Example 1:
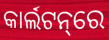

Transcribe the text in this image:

କାର୍ଲଟନ୍‌ରେ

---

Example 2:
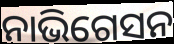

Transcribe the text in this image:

ନାଭିଗେସନ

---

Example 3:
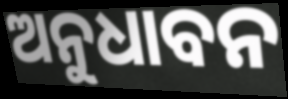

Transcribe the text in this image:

ଅନୁଧାବନ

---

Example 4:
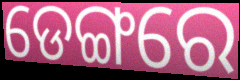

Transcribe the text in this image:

ଡେଙ୍ଗରେ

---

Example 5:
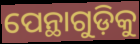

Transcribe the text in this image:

ପେନ୍ଥାଗୁଡ଼ିକୁ